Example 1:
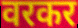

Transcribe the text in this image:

वरकर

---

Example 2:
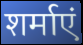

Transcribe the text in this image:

शर्माएं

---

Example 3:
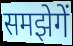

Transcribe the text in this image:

समझेगें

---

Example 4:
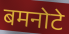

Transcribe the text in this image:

बमनोटे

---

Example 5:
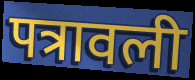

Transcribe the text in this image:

पत्रावली